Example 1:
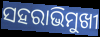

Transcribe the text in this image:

ସହରାଭିମୁଖୀ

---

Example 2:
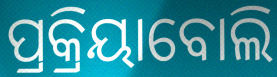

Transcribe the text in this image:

ପ୍ରକ୍ରିୟାବୋଲି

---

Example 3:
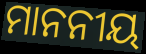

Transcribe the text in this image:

ମାନନୀୟ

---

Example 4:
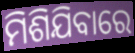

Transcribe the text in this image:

ମିଶିଯିବାରେ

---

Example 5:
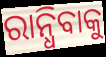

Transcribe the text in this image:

ରାନ୍ଧିବାକୁ